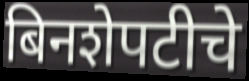
बिनशेपटीचे